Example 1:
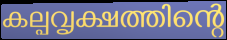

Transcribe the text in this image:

കല്പവൃക്ഷത്തിന്റെ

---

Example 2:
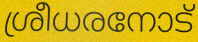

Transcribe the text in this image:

ശ്രീധരനോട്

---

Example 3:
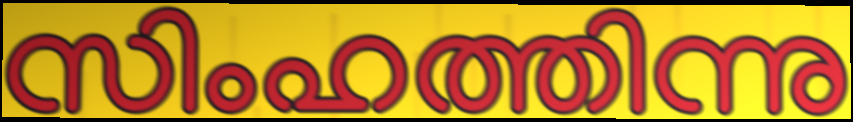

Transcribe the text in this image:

സിംഹത്തിന്നു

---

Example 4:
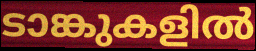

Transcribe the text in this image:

ടാങ്കുകളിൽ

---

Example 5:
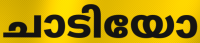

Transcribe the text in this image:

ചാടിയോ